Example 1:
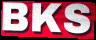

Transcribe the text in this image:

BKS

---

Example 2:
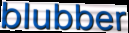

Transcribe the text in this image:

blubber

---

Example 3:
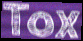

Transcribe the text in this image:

Tox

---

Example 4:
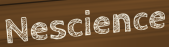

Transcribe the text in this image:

Nescience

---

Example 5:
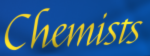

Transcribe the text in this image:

Chemists